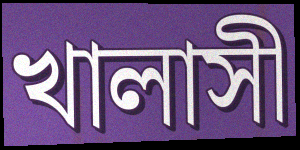
খালাসী